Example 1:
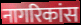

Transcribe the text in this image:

नागरिकांस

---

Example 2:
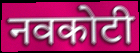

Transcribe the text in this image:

नवकोटी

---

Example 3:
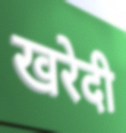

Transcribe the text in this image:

खरेदी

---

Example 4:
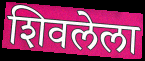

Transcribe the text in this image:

शिवलेला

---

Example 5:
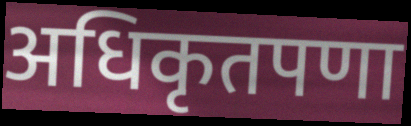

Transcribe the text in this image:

अधिकृतपणा